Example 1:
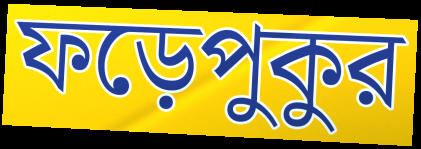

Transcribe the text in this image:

ফড়েপুকুর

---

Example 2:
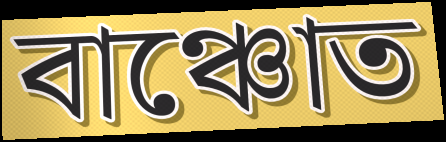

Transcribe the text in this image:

বাঞ্চোত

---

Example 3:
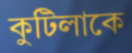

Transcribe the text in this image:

কুটিলাকে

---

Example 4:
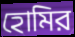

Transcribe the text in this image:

হোমির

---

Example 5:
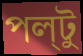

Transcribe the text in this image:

পল্‌টু